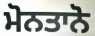
ਮੋਨਤਾਨੋ